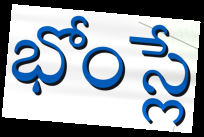
భోంస్లే